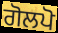
ਗੋਲਪੋ